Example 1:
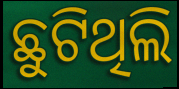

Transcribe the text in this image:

ଛୁଟିଥିଲି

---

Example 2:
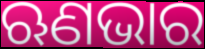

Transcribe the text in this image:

ଋଣଭାର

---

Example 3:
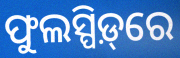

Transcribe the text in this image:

ଫୁଲସ୍ପିଡ଼୍‌ରେ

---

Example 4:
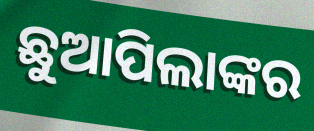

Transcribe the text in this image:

ଛୁଆପିଲାଙ୍କର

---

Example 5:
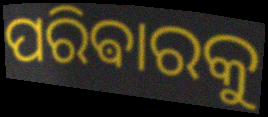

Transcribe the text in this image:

ପରିଵାରକୁ